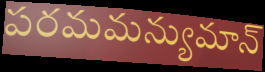
పరమమన్యుమాన్